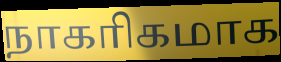
நாகரிகமாக